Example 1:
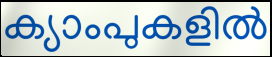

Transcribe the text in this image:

ക്യാംപുകളിൽ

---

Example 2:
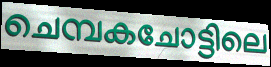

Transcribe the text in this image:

ചെമ്പകചോട്ടിലെ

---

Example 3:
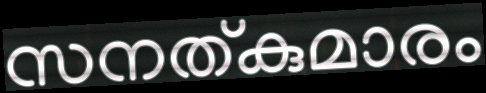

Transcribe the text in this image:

സനത്കുമാരം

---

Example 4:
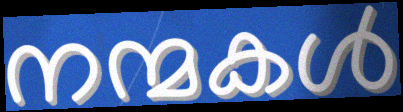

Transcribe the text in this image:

നന്മകൾ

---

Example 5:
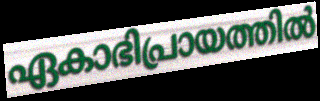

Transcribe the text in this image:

ഏകാഭിപ്രായത്തിൽ